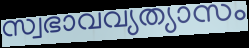
സ്വഭാവവ്യത്യാസം